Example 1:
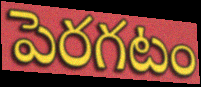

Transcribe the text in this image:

పెరగటం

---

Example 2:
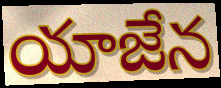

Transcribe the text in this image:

యాజేన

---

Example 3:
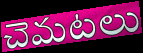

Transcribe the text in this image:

చెమటలు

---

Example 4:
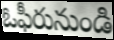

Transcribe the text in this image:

ఓఫీరునుండి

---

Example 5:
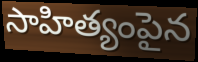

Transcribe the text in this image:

సాహిత్యంపైన